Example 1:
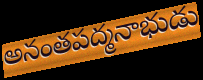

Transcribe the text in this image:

అనంతపద్మనాభుడు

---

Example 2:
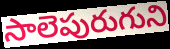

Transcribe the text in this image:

సాలెపురుగుని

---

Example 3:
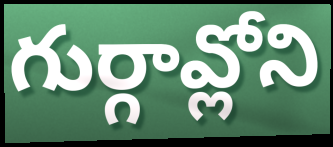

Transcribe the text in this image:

గుర్గావ్లోని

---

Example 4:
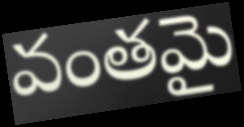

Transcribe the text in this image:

వంతమై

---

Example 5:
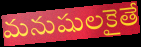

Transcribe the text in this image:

మనుషులకైతే